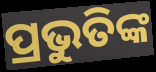
ପ୍ରଭୁତିଙ୍କ